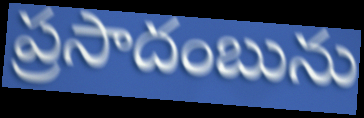
ప్రసాదంబును